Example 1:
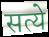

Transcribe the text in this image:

सत्ये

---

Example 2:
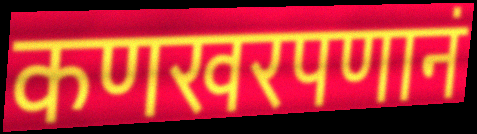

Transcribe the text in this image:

कणखरपणानं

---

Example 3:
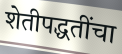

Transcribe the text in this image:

शेतीपद्धतींचा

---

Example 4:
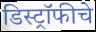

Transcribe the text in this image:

डिस्ट्रॉफीचे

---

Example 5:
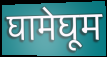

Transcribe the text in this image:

घामेघूम